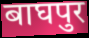
बाघपुर